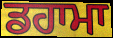
ਡਹਾਮਾ